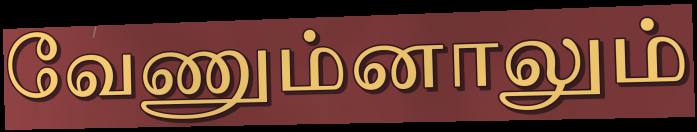
வேணும்னாலும்